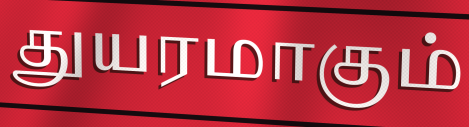
துயரமாகும்